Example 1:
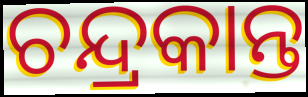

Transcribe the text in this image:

ଚନ୍ଦ୍ରକାନ୍ତ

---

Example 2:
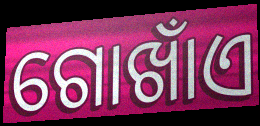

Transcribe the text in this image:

ଗୋଖାଁଏ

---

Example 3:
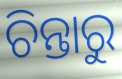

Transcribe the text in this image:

ଚିନ୍ତାରୁ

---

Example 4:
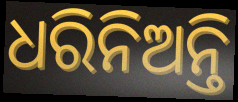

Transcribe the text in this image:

ଧରିନିଅନ୍ତି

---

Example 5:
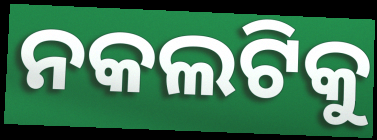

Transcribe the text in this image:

ନକଲଟିକୁ